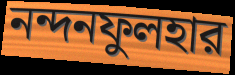
নন্দনফুলহার